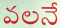
వలనే